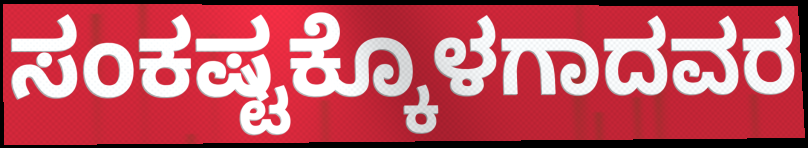
ಸಂಕಷ್ಟಕ್ಕೊಳಗಾದವರ